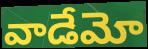
వాడేమో